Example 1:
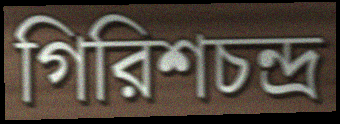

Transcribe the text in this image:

গিরিশচন্দ্র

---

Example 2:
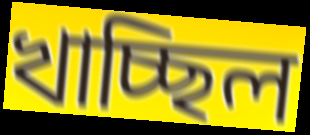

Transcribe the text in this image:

খাচ্ছিল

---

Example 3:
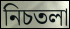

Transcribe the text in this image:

নিচতলা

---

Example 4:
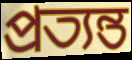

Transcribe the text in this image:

প্রত্যন্ত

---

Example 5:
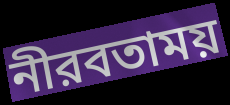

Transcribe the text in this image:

নীরবতাময়